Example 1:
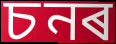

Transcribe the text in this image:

চনৰ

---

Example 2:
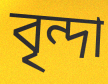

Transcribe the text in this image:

বৃন্দা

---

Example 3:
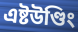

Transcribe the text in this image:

এষ্টউণ্ডিং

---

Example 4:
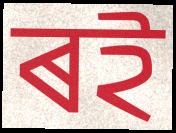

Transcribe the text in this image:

ৰই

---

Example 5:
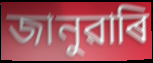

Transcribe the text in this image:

জানুৱাৰি